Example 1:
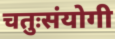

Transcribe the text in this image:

चतुःसंयोगी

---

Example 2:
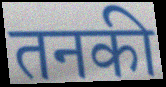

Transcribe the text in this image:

तनकी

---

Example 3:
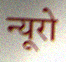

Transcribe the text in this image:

न्यूरो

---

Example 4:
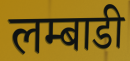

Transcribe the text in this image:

लम्बाडी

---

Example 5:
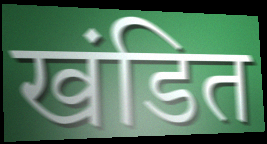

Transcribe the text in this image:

खंडित